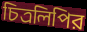
চিত্রলিপির